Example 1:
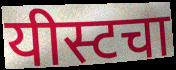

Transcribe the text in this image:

यीस्टचा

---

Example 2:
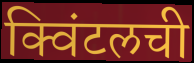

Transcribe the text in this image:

क्विंटलची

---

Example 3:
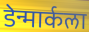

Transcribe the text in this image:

डेन्मार्कला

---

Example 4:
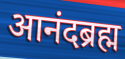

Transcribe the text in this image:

आनंदब्रह्म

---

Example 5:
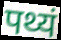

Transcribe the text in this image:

पथ्यं